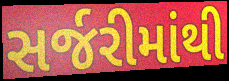
સર્જરીમાંથી